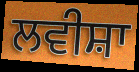
ਲਵੀਸ਼ਾ